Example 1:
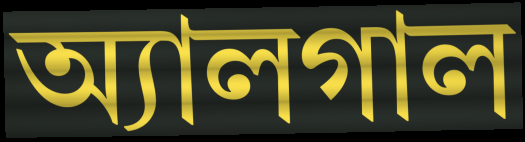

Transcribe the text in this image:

অ্যালগাল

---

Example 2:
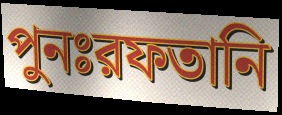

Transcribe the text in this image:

পুনঃরফতানি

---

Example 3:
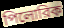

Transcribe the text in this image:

পিলোরিক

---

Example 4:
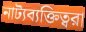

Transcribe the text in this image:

নাট্যব্যক্তিত্বরা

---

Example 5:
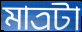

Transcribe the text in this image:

মাত্রটা